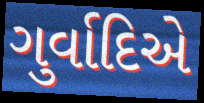
ગુર્વાદિએ